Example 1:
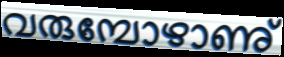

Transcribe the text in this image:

വരുമ്പോഴാണു്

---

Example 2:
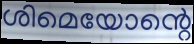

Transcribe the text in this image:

ശിമെയോന്റെ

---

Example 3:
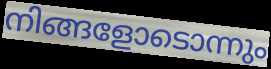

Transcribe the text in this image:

നിങ്ങളോടൊന്നും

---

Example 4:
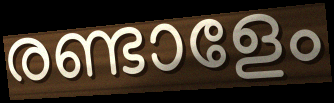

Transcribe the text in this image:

രണ്ടാളേം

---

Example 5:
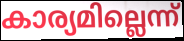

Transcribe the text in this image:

കാര്യമില്ലെന്ന്